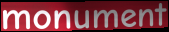
monument